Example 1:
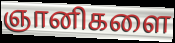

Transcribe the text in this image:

ஞானிகளை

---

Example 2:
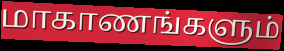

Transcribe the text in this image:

மாகாணங்களும்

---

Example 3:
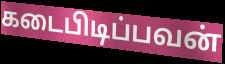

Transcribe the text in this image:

கடைபிடிப்பவன்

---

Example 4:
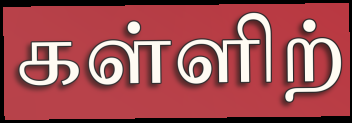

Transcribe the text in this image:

கள்ளிற்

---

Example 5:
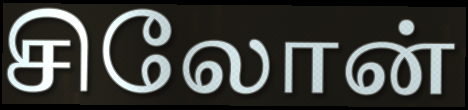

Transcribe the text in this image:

சிலோன்